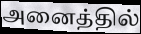
அனைத்தில்